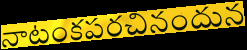
నాటంకపరచినందున